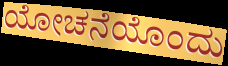
ಯೋಚನೆಯೊಂದು